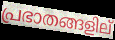
പ്രഭാതങ്ങളില്